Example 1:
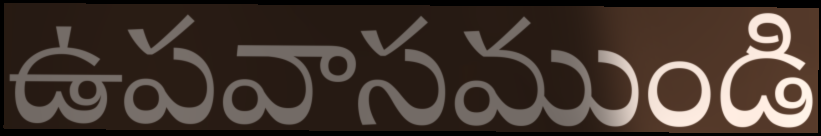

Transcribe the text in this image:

ఉపవాసముండి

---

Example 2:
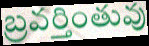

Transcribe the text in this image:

బ్రవర్తింతువు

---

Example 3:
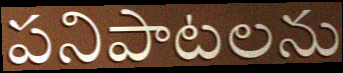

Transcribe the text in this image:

పనిపాటలను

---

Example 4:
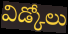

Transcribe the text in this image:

విడ్కోలు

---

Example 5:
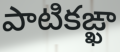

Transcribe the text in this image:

పాటికఙ్ఖా